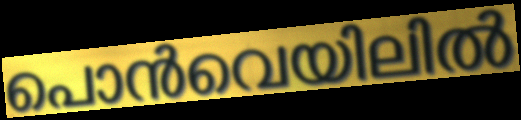
പൊൻവെയിലിൽ